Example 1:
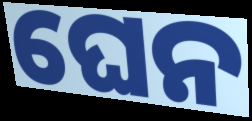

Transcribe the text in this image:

ଘେନ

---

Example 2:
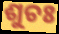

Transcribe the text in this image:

ଶୁଚଃ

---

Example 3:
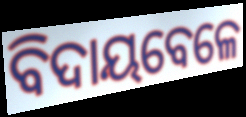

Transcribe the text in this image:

ବିଦାୟବେଳେ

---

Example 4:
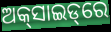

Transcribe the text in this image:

ଅକ୍‌ସାଇଡ୍‌ରେ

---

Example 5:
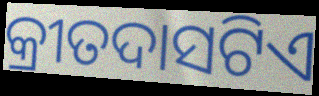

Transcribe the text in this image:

କ୍ରୀତଦାସଟିଏ